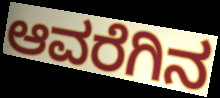
ಆವರೆಗಿನ